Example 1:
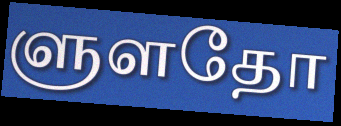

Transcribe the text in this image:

ளுளதோ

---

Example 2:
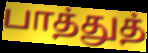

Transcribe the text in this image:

பாத்துத்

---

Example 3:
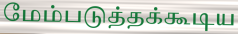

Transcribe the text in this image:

மேம்படுத்தக்கூடிய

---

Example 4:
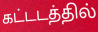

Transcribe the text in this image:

கட்டடத்தில்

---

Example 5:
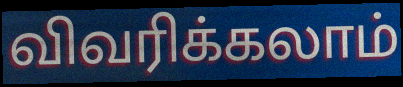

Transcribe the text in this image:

விவரிக்கலாம்